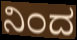
ನಿಂದ